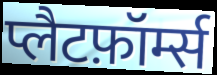
प्लैटफ़ॉर्म्स